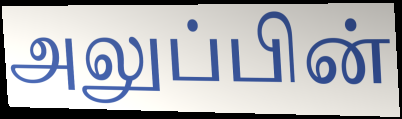
அலுப்பின்